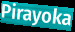
Pirayoka